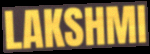
LAKSHMI